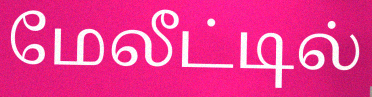
மேலீட்டில்